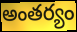
అంతర్యం